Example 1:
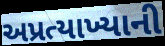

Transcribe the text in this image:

અપ્રત્યાખ્યાની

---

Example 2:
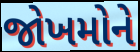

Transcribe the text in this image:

જોખમોને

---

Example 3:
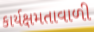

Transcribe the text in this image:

કાર્યક્ષમતાવાળી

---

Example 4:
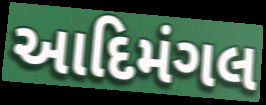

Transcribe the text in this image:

આદિમંગલ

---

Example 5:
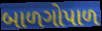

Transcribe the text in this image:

બાળગોપાળ